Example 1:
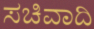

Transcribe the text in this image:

ಸಚಿವಾದಿ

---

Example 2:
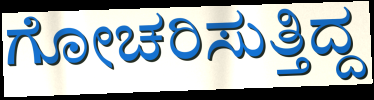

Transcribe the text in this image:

ಗೋಚರಿಸುತ್ತಿದ್ದ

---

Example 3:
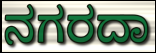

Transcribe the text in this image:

ನಗರದಾ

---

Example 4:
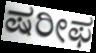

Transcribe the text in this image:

ಷರೀಫ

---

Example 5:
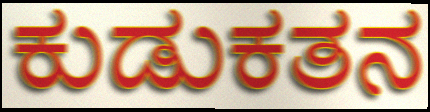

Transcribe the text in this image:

ಕುಡುಕತನ